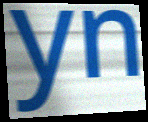
yn